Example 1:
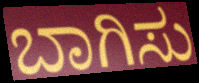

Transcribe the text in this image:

ಬಾಗಿಸು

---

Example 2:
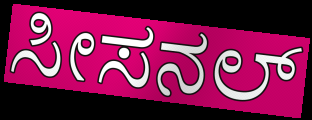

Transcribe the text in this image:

ಸೀಸನಲ್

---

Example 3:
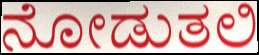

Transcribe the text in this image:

ನೋಡುತಲಿ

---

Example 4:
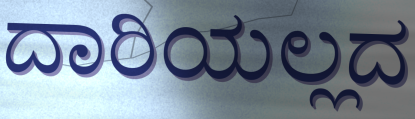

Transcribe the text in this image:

ದಾರಿಯಲ್ಲದ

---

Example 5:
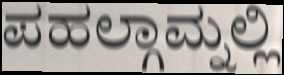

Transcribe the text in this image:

ಪಹಲ್ಗಾಮ್ನಲ್ಲಿ